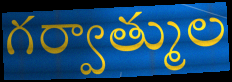
గర్వాత్ముల